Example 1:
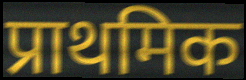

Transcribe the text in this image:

प्राथमिक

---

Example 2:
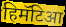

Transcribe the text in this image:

हिमॅटिआ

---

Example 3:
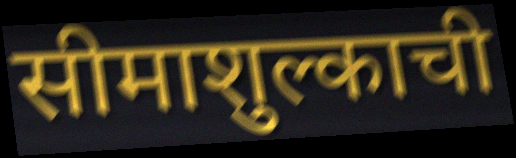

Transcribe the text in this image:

सीमाशुल्काची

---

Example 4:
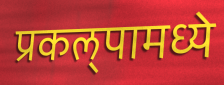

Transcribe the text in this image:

प्रकल्पामध्ये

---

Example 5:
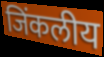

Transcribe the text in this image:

जिंकलीय